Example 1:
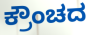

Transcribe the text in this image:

ಕ್ರೌಂಚದ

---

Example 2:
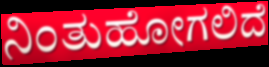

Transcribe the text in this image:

ನಿಂತುಹೋಗಲಿದೆ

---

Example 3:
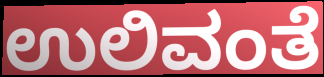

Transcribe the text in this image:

ಉಲಿವಂತೆ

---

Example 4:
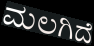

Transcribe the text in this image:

ಮಲಗಿದೆ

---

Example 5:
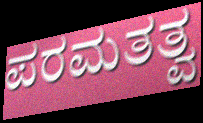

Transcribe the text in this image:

ಪರಮತತ್ವ